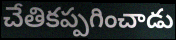
చేతికప్పగించాడు